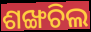
ଶଙ୍ଖଚିଲ